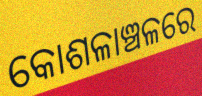
କୋଶଳାଞ୍ଚଳରେ